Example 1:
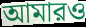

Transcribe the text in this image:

আমারও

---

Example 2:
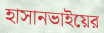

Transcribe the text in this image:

হাসানভাইয়ের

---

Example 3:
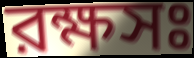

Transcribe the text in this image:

রক্ষসঃ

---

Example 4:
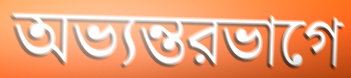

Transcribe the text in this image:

অভ্যন্তরভাগে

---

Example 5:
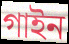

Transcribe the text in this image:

গাইন